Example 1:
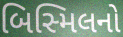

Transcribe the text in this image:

બિસ્મિલનો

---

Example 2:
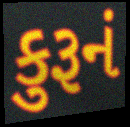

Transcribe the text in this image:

કુરૂનં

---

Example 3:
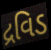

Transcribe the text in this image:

દ્રવિડ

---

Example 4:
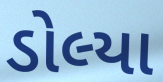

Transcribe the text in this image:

ડોલ્યા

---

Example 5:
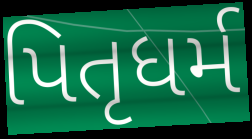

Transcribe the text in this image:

પિતૃધર્મ